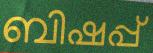
ബിഷപ്പ്